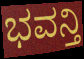
ಭವನ್ತಿ